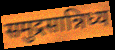
समुद्रसान्निध्य